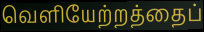
வெளியேற்றத்தைப்